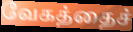
வேகத்தைச்